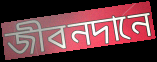
জীবনদানে